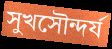
সুখসৌন্দর্য